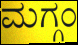
ಮಗ್ಗಂ